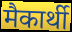
मैकार्थी